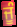
ਜੂੰ